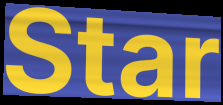
Star